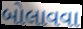
બોલાવવા